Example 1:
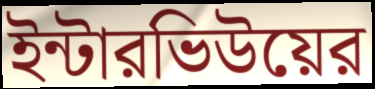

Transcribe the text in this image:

ইন্টারভিউয়ের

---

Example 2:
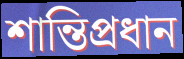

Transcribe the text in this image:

শান্তিপ্রধান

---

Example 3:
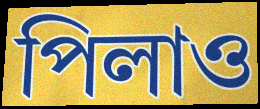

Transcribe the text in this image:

পিলাও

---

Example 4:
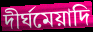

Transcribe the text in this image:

দীর্ঘমেয়াদি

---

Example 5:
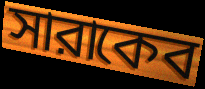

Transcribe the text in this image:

সারাকেব